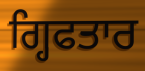
ਗ੍ਹਿਫਤਾਰ